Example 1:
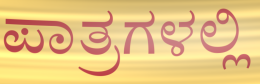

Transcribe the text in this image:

ಪಾತ್ರಗಳಲ್ಲಿ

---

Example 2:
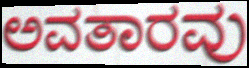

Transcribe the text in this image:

ಅವತಾರವು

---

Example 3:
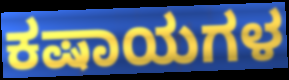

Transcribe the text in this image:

ಕಷಾಯಗಳ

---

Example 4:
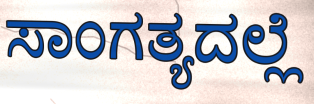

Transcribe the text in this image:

ಸಾಂಗತ್ಯದಲ್ಲೆ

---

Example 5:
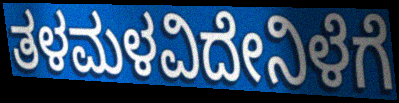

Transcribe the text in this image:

ತಳಮಳವಿದೇನಿಳೆಗೆ